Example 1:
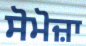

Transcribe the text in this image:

ਸੋਮੋਜ਼ਾ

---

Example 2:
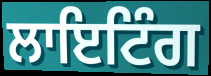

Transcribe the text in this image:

ਲਾਇਟਿੰਗ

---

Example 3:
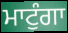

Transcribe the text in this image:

ਮਾਟੁੰਗਾ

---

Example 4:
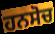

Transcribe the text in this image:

ਹਨਸੋਚ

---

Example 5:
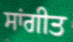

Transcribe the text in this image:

ਸਾਂਗੀਤ